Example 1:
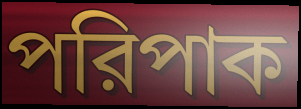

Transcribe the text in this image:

পরিপাক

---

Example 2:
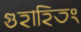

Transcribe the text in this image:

গুহাহিতং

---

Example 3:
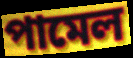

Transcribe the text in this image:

পামেল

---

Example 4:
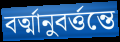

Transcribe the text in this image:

বর্ত্মানুবর্ত্তন্তে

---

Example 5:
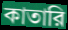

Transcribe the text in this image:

কাতারি